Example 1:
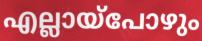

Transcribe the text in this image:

എല്ലായ്പോഴും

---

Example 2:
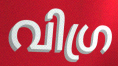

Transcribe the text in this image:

വിഗ്ര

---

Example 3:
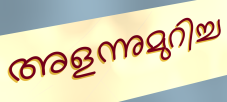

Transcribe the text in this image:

അളന്നുമുറിച്ച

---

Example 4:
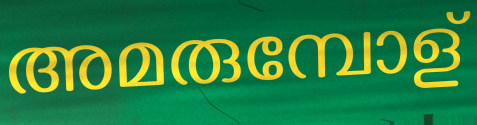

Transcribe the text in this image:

അമരുമ്പോള്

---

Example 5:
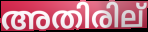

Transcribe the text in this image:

അതിരില്